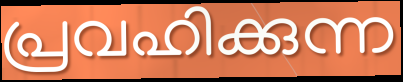
പ്രവഹിക്കുന്ന